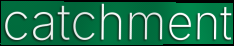
catchment